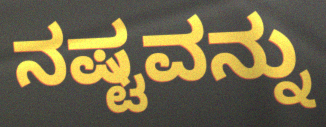
ನಷ್ಟವನ್ನು